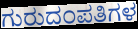
ಗುರುದಂಪತಿಗಳ